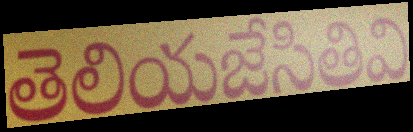
తెలియజేసితివి